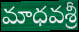
మాధవశ్రీ